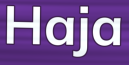
Haja